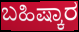
ಬಹಿಷ್ಕಾರ